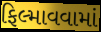
ફિલ્માવવામાં